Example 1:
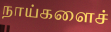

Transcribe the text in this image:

நாய்களைச்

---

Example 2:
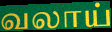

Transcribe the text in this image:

வலாய்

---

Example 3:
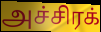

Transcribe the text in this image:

அச்சிரக்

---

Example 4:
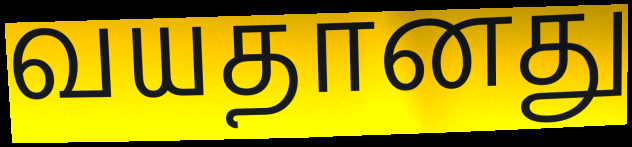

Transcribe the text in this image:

வயதானது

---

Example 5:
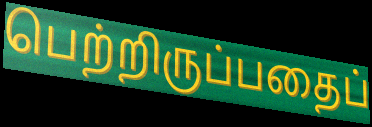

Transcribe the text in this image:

பெற்றிருப்பதைப்